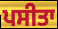
ਪਸੀਤਾ